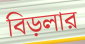
বিড়লার